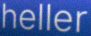
heller